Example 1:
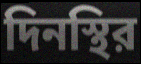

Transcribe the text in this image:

দিনস্থির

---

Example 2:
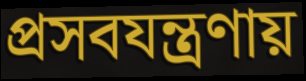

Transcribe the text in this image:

প্রসবযন্ত্রণায়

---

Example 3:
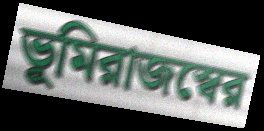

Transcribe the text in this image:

ভূমিরাজস্বের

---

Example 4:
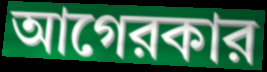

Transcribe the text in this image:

আগেরকার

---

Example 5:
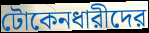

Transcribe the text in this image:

টোকেনধারীদের